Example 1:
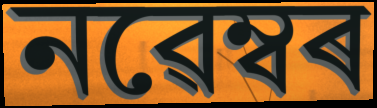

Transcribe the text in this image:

নৱেম্বৰ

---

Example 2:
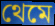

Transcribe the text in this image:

থেমে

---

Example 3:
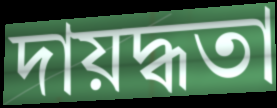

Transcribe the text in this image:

দায়দ্ধতা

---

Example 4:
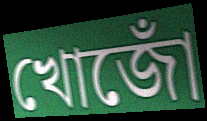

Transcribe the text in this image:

খোজোঁ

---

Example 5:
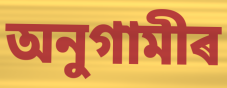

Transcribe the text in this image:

অনুগামীৰ